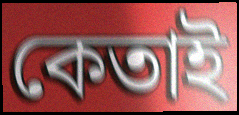
কেতাই